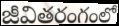
జీవితరంగంలో